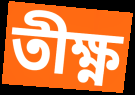
তীক্ষ্ণ